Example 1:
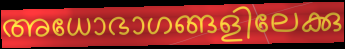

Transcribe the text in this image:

അധോഭാഗങ്ങളിലേക്കു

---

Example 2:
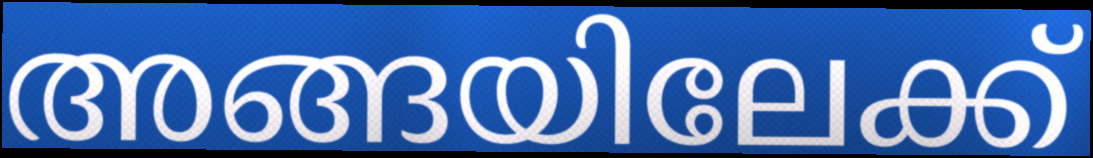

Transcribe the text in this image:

അങ്ങയിലേക്ക്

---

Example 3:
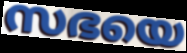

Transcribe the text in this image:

സഭയെ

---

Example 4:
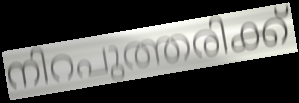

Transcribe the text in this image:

നിറപുത്തരിക്ക്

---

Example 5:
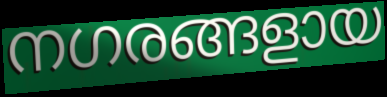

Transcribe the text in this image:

നഗരങ്ങളായ